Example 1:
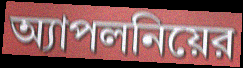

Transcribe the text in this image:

অ্যাপলনিয়ের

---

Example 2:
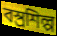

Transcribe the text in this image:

বস্ত্রশিল্প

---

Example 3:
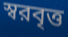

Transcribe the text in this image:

স্বরবৃত্ত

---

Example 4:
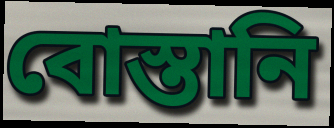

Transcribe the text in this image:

বোস্তানি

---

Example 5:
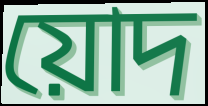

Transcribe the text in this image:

য়োদ